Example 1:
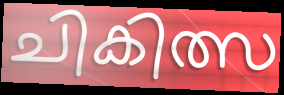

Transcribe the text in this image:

ചികിത്സ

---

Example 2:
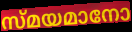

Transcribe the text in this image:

സ്മയമാനോ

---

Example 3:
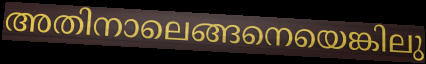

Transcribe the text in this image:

അതിനാലെങ്ങനെയെങ്കിലു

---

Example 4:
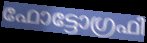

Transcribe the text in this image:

ഫോട്ടോഗ്രഫി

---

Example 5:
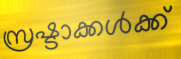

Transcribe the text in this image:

സ്രഷ്ടാക്കൾക്ക്